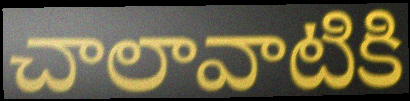
చాలావాటికి